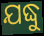
ଯଦ୍ଧୁ